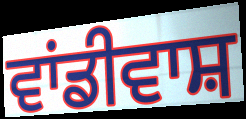
ਵਾਂਡੀਵਾਸ਼